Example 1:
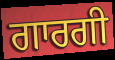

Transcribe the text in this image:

ਗਾਰਗੀ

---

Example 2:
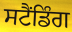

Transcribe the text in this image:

ਸਟੈਂਡਿੰਗ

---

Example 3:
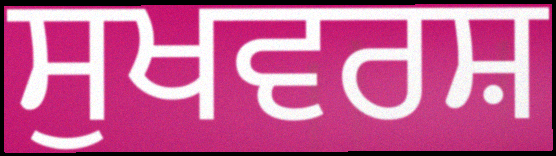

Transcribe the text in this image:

ਸੁਖਵਰਸ਼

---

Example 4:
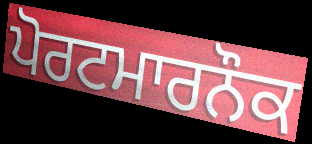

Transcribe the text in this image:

ਪੋਰਟਮਾਰਨੌਕ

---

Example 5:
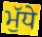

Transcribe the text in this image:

ਮੁੱਧੇ